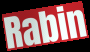
Rabin